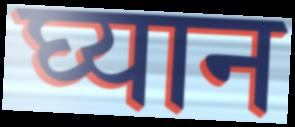
घ्यान